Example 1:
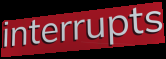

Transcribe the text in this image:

interrupts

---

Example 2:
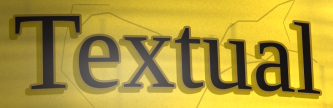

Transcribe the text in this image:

Textual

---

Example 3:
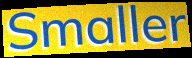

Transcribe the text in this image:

Smaller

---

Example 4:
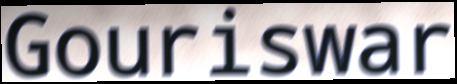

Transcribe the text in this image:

Gouriswar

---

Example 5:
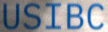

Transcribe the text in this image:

USIBC